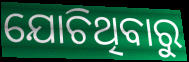
ଯୋଚିଥିବାରୁ